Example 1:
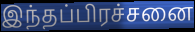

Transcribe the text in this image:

இந்தப்பிரச்சனை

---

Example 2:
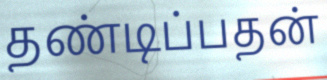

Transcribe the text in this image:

தண்டிப்பதன்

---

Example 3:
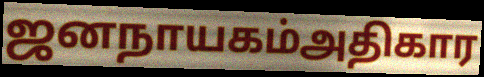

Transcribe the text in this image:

ஜனநாயகம்அதிகார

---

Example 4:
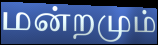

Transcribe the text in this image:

மன்றமும்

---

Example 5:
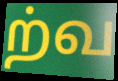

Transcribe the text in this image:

ற்வ